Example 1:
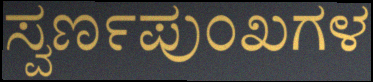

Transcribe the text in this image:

ಸ್ವರ್ಣಪುಂಖಗಳ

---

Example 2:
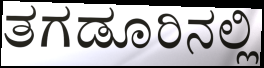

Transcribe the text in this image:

ತಗಡೂರಿನಲ್ಲಿ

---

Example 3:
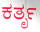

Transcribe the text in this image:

ಕರ್ತೃ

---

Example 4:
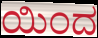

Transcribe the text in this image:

ಯಿಂದ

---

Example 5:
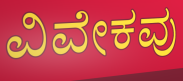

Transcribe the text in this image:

ವಿವೇಕವು